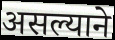
असल्‍याने